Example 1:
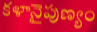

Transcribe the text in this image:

కళానైపుణ్యం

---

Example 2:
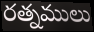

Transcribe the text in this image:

రత్నములు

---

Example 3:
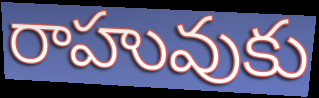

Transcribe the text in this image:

రాహువుకు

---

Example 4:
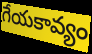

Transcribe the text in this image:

గేయకావ్యం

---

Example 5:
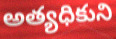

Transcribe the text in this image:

అత్యధికుని